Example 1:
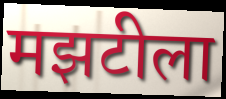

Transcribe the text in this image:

मझटीला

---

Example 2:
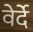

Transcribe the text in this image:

वेर्दे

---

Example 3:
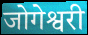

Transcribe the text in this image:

जोगेश्वरी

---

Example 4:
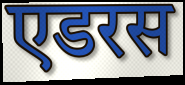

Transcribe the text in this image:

एडरस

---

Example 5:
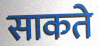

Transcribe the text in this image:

साकते